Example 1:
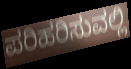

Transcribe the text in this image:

ಪರಿಹರಿಸುವಲ್ಲಿ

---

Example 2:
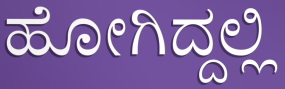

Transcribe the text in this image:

ಹೋಗಿದ್ದಲ್ಲಿ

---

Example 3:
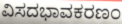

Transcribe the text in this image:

ವಿಸದಭಾವಕರಣಂ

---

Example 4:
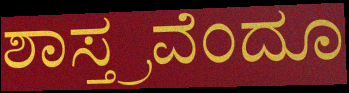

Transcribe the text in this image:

ಶಾಸ್ತ್ರವೆಂದೂ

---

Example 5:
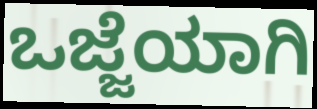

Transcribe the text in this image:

ಒಜ್ಜೆಯಾಗಿ